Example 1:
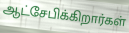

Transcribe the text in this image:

ஆட்சேபிக்கிறார்கள்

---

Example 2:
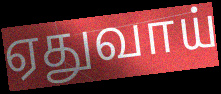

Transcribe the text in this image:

ஏதுவாய்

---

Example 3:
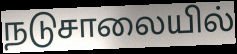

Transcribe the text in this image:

நடுசாலையில்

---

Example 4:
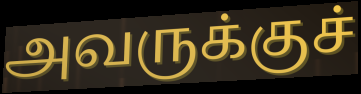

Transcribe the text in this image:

அவருக்குச்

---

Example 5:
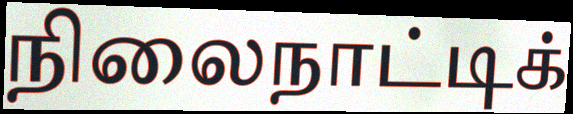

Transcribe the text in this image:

நிலைநாட்டிக்